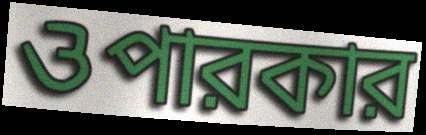
ওপারকার